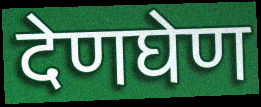
देणघेण